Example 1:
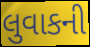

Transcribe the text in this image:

લુવાકની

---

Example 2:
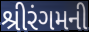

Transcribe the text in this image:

શ્રીરંગમની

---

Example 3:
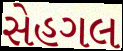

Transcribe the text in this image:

સેહગલ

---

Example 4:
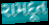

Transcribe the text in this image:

રામદૂત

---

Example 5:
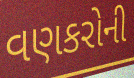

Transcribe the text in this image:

વણકરોની